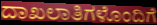
ದಾಖಲಾತಿಗಳೊಂದಿಗೆ